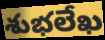
శుభలేఖ